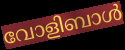
വോളിബാൾ